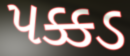
પક્કડ